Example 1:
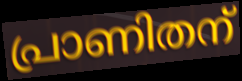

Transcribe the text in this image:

പ്രാണിതന്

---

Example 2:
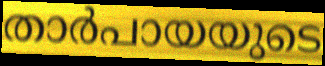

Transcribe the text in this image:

താർപായയുടെ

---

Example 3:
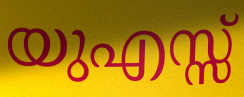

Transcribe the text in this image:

യുഎസ്സ്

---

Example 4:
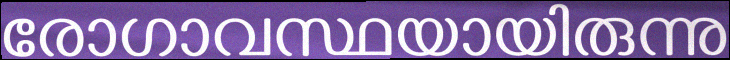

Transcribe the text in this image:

രോഗാവസ്ഥയായിരുന്നു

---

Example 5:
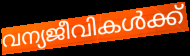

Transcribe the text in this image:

വന്യജീവികൾക്ക്